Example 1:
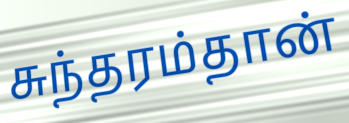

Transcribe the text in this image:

சுந்தரம்தான்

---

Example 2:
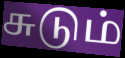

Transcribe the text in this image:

சுடும்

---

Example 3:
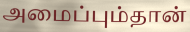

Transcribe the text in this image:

அமைப்பும்தான்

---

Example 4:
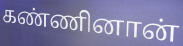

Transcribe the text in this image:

கண்ணினான்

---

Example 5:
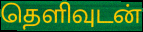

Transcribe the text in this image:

தெளிவுடன்